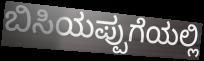
ಬಿಸಿಯಪ್ಪುಗೆಯಲ್ಲಿ